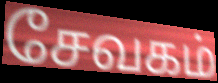
சேவகம்